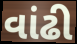
વાંઢી